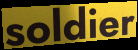
soldier